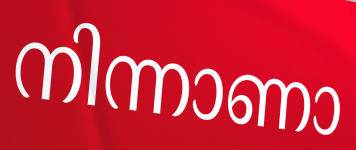
നിന്നാണാ